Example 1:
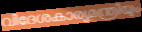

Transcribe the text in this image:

വിദേശകാര്യമന്ത്രിയും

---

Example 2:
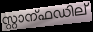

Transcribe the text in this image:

സ്റ്റാന്ഫഡില്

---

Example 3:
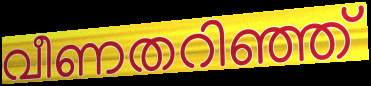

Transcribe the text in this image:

വീണതറിഞ്ഞ്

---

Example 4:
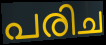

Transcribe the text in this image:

പരിച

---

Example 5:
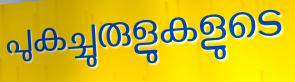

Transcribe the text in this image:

പുകച്ചുരുളുകളുടെ